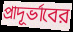
প্রাদূর্ভাবের